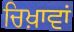
ਚਿਖ਼ਾਵਾਂ